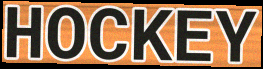
HOCKEY